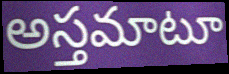
అస్తమాటూ